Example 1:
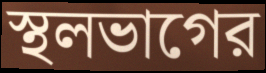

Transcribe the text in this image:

স্থলভাগের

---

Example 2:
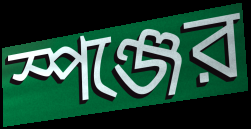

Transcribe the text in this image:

স্পঞ্জের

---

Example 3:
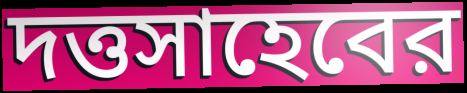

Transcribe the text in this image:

দত্তসাহেবের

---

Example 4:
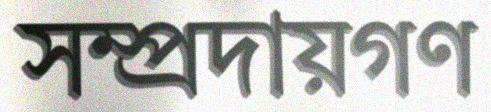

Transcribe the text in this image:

সম্প্রদায়গণ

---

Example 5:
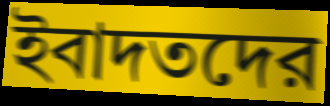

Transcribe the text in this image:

ইবাদতদের